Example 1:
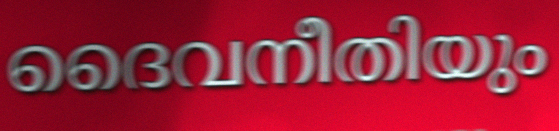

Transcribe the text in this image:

ദൈവനീതിയും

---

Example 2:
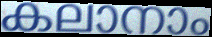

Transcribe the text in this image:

കലാനാം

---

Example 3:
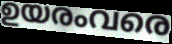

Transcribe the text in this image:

ഉയരംവരെ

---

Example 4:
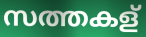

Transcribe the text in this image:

സത്തകള്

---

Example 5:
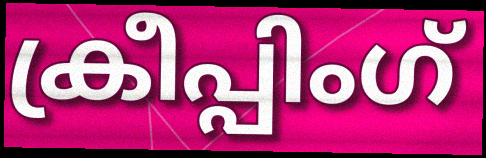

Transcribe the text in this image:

ക്രീപ്പിംഗ്